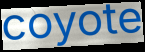
coyote